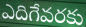
ఎదిగేవరకు